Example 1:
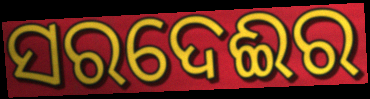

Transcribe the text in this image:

ସରଦେଈର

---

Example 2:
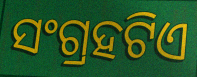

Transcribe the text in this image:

ସଂଗ୍ରହଟିଏ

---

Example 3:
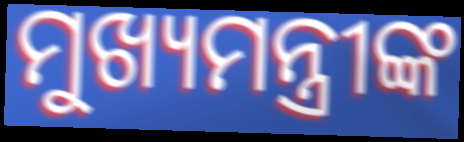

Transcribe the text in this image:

ମୁଖ୍ୟମନ୍ତ୍ରୀଙ୍କ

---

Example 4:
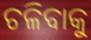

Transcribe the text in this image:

ଚଳିବାକୁ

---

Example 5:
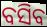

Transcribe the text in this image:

ବସିବ